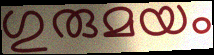
ഗുരുമയം